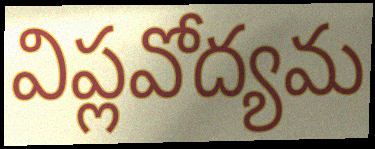
విప్లవోద్యమ